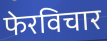
फेरविचार